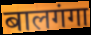
बालगंगा